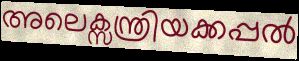
അലെക്സന്ത്രിയക്കപ്പൽ